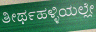
ತೀರ್ಥಹಳ್ಳಿಯಲ್ಲೇ